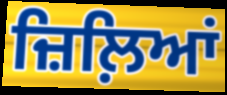
ਜ਼ਿਲ਼ਿਆਂ